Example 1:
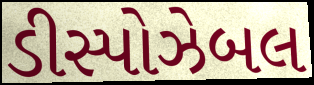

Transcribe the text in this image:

ડીસ્પોઝેબલ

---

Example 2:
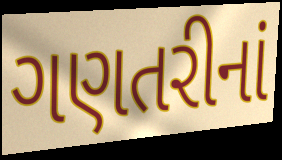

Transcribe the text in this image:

ગણતરીનાં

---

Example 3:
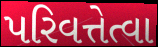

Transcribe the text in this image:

પરિવત્તેત્વા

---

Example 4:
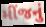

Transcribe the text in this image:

મીંજનું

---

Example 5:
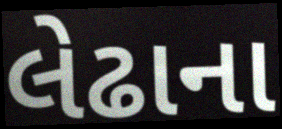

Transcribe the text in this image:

લેઢાના